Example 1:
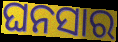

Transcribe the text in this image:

ଘନସାର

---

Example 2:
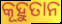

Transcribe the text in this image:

କୂହୁତାନ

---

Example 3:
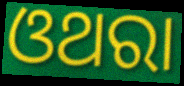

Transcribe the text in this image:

ଓଥରା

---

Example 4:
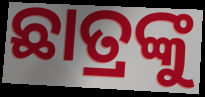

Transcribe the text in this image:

ଛାତ୍ରଙ୍କୁ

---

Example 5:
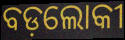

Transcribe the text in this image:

ବଡ଼ଲୋକୀ